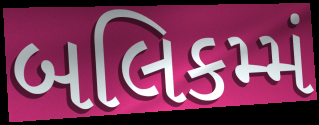
બલિકમ્મં